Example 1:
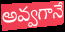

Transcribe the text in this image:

అవ్వగానే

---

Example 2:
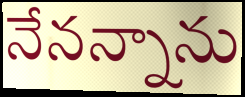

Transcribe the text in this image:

నేనన్నాను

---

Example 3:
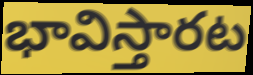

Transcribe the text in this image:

భావిస్తారట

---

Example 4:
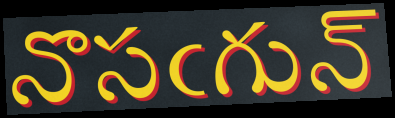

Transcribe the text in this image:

నొసఁగున్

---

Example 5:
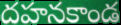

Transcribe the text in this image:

దహనకాండ